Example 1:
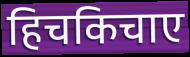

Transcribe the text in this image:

हिचकिचाए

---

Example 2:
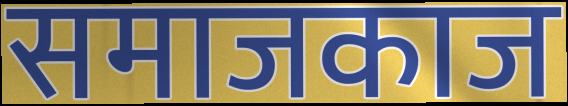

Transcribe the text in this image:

समाजकाज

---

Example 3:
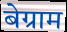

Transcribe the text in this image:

बेग्राम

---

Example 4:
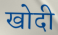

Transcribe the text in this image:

खोदी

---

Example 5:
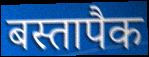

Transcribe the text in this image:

बस्तापैक